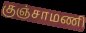
குஞ்சாமணி